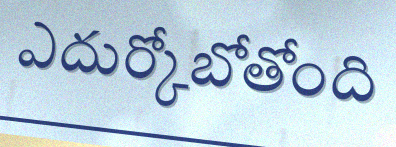
ఎదుర్కోబోతోంది